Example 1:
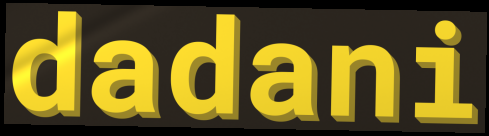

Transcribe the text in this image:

dadani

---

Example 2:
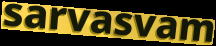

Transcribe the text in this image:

sarvasvam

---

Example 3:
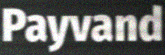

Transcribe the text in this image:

Payvand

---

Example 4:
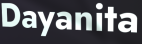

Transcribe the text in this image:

Dayanita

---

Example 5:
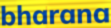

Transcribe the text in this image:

bharana